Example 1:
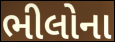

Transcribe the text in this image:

ભીલોના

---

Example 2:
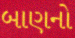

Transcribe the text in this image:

બાણનો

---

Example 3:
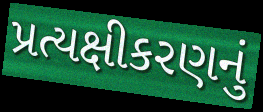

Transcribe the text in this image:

પ્રત્યક્ષીકરણનું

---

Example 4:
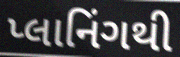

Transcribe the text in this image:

પ્લાનિંગથી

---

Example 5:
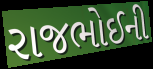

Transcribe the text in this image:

રાજભોઈની